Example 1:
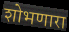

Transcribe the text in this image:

शोभणारा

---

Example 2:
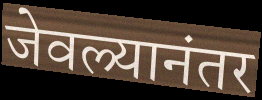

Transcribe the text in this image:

जेवल्यानंतर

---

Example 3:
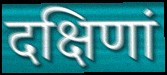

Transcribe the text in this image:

दक्षिणां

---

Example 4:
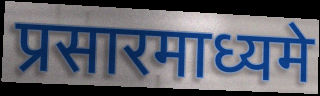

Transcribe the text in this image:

प्रसारमाध्यमे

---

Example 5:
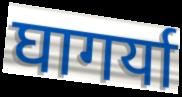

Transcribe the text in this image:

घागर्या